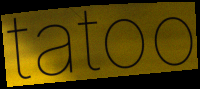
tatoo